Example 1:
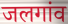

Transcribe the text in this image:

जलगांव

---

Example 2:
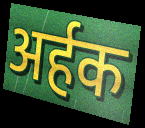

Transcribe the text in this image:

अर्हक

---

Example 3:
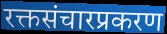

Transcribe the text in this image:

रक्तसंचारप्रकरण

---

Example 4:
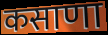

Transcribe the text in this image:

कसाणा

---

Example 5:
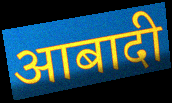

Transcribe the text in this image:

आबादी